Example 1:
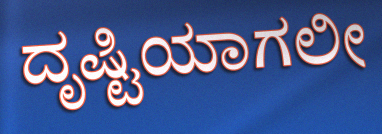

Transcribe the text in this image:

ದೃಷ್ಟಿಯಾಗಲೀ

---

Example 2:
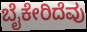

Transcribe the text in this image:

ಬೈಕೇರಿದೆವು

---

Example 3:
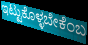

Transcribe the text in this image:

ಇಟ್ಟುಕೊಳ್ಳಬೇಕೆಂಬ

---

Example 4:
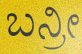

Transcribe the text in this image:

ಬನ್ರೀ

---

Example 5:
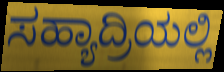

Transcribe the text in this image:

ಸಹ್ಯಾದ್ರಿಯಲ್ಲಿ